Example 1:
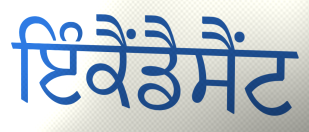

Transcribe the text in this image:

ਇੰਕੈਂਡੈਸੈਂਟ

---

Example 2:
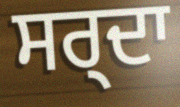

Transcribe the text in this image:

ਸਰ੍ਦਾ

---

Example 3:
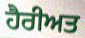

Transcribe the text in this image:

ਹੈਰੀਅਤ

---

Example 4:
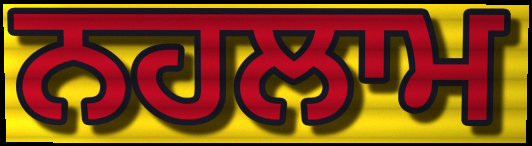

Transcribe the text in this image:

ਨਹਲਾਮ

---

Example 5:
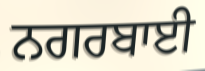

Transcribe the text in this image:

ਨਗਰਬਾਈ